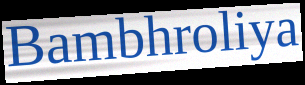
Bambhroliya